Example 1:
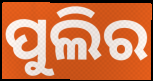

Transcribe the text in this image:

ପୁଲିର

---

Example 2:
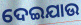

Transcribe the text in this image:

ଦେଇଯାଉ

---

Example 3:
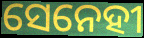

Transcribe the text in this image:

ସେନେହୀ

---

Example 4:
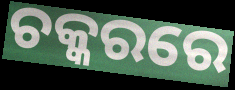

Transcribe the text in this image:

ଚକ୍କରରେ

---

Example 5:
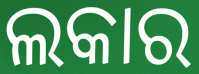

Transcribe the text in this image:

ଲକାର